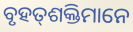
ବୃହତ୍‌ଶକ୍ତିମାନେ